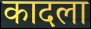
कादला